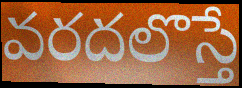
వరదలొస్తే